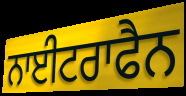
ਨਾਈਟਰਾਫੈਨ